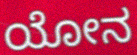
ಯೋನ